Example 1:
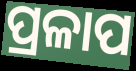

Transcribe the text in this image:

ପ୍ରଳାପ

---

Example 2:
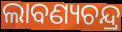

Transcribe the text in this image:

ଲାବଣ୍ୟଚନ୍ଦ୍ର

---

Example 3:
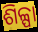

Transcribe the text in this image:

ଶିଳ୍ପା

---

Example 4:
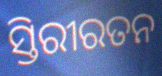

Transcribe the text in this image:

ସ୍ତିରୀରତନ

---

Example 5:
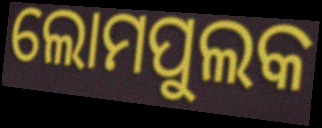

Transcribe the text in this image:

ଲୋମପୁଲକ